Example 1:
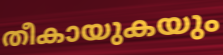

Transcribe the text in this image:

തീകായുകയും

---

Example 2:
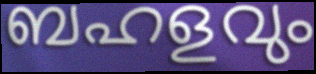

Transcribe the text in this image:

ബഹളവും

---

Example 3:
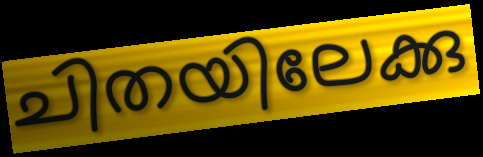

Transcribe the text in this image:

ചിതയിലേക്കു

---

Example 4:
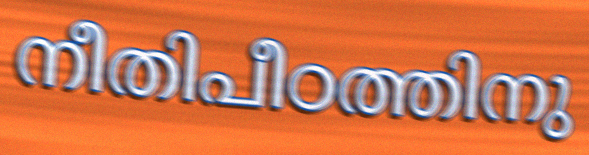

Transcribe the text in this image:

നീതിപീഠത്തിനു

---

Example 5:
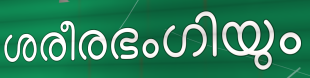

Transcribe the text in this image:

ശരീരഭംഗിയും